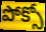
పోక్సో